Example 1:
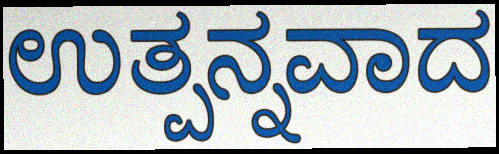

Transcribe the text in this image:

ಉತ್ಪನ್ನವಾದ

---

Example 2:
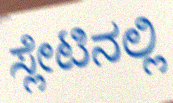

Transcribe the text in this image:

ಸ್ಲೇಟಿನಲ್ಲಿ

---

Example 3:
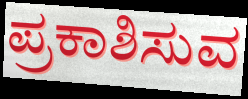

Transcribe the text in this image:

ಪ್ರಕಾಶಿಸುವ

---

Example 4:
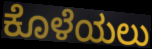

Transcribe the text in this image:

ಕೊಳೆಯಲು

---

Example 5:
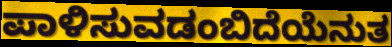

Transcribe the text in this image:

ಪಾಳಿಸುವಡಂಬಿದೆಯೆನುತ